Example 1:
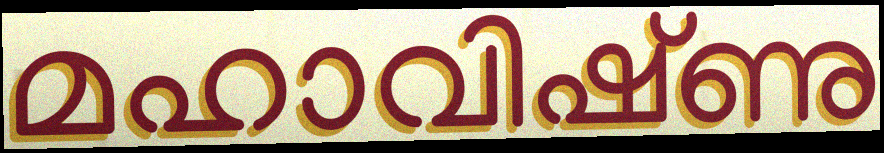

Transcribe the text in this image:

മഹാവിഷ്‌ണു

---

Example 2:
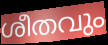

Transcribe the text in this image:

ശീതവും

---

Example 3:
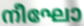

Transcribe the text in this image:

നീഘോ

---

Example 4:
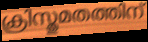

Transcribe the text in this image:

ക്രിസ്തുമതത്തിന്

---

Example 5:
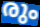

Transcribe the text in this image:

രും